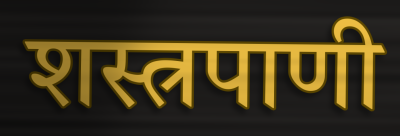
शस्त्रपाणी